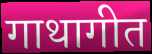
गाथागीत